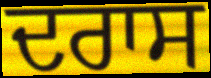
ਦਰਾਸ